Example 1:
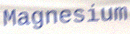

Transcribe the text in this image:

Magnesium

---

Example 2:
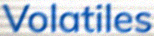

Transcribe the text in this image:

Volatiles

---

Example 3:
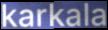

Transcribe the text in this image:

karkala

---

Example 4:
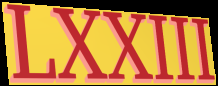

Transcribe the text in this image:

LXXIII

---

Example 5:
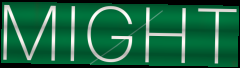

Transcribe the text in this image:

MIGHT